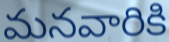
మనవారికి